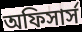
অফিসার্স